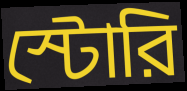
স্টোরি